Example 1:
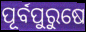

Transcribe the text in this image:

ପୂର୍ବପୁରୁଷେ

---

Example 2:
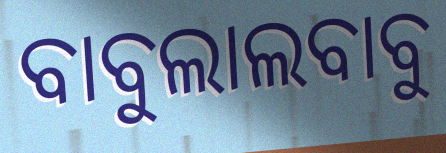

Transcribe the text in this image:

ବାବୁଲାଲବାବୁ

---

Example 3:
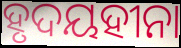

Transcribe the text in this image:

ହୃଦୟହୀନା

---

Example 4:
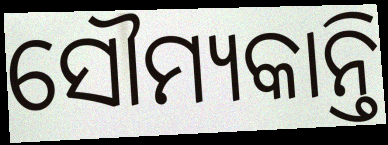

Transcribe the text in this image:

ସୌମ୍ୟକାନ୍ତି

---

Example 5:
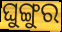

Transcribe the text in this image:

ଘୁଙ୍ଗୁର